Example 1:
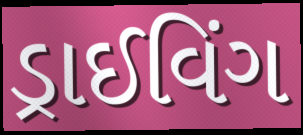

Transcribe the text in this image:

ડ્રાઈવિંગ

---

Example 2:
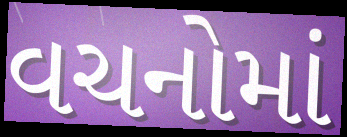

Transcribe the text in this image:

વચનોમાં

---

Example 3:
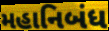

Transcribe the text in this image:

મહાનિબંધ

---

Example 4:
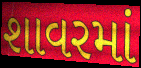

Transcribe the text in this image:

શાવરમાં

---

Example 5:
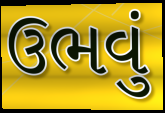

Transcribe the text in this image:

ઉભવું